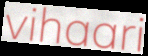
vihaari